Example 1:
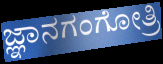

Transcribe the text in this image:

ಜ್ಞಾನಗಂಗೋತ್ರಿ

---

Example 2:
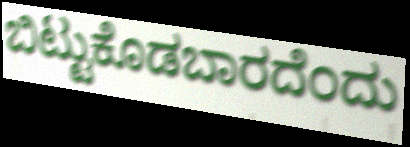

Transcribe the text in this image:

ಬಿಟ್ಟುಕೊಡಬಾರದೆಂದು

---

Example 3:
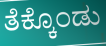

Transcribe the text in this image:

ತೆಕ್ಕೊಂಡು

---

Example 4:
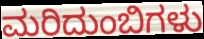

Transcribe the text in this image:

ಮರಿದುಂಬಿಗಳು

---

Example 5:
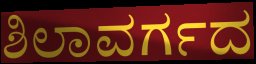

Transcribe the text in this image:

ಶಿಲಾವರ್ಗದ